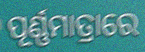
ପୂର୍ଣ୍ଣମାତ୍ରାରେ